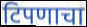
टिपणाचा